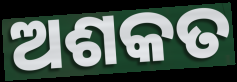
ଅଶକତ